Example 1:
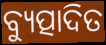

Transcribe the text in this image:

ବ୍ୟୁତ୍ପାଦିତ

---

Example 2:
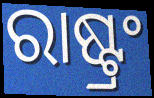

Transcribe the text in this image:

ରାଷ୍ଟ୍ରଂ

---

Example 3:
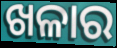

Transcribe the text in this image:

ଖଳାର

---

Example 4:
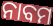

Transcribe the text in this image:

ନାବମ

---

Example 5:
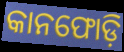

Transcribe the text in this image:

କାନଫୋଡ଼ି